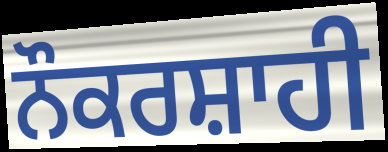
ਨੌਕਰਸ਼ਾਹੀ